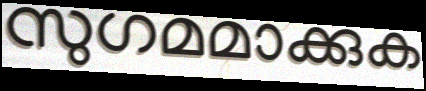
സുഗമമാക്കുക